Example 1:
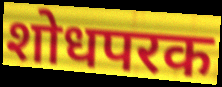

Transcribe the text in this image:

शोधपरक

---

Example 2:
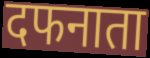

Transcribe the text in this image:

दफनाता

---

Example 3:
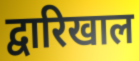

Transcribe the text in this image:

द्वारिखाल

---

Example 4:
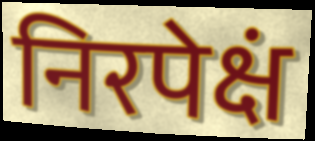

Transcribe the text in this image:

निरपेक्षं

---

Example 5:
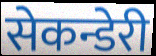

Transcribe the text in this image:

सेकन्डेरी